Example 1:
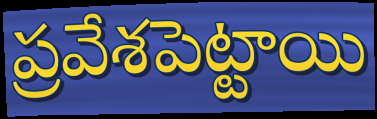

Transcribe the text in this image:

ప్రవేశపెట్టాయి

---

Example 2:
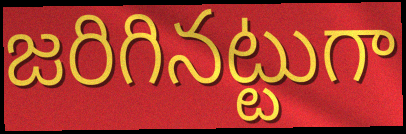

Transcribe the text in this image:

జరిగినట్టుగా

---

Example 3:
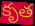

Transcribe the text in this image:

కృత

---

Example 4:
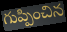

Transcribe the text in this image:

గుప్పించిన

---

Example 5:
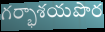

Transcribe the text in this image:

గర్భాశయపొర